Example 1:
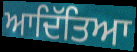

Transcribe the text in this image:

ਆਦਿੱਤਿਆ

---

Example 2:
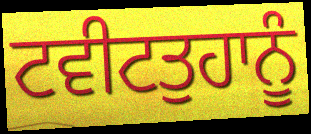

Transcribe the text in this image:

ਟਵੀਟਤੁਹਾਨੂੰ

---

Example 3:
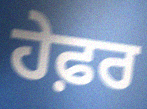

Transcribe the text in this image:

ਹੇਫ਼ਰ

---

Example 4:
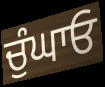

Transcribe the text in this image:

ਚੁੰਘਾਓ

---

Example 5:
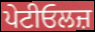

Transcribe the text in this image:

ਪੇਟੀਓਲਜ਼